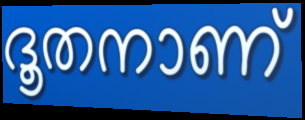
ദൂതനാണ്